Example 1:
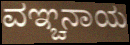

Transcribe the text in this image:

ವಞ್ಚನಾಯ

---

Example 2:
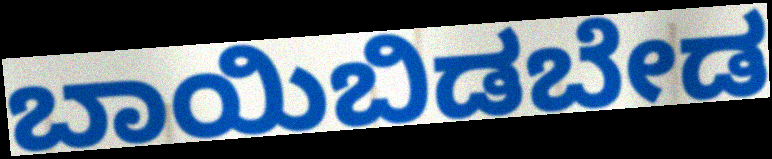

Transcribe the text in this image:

ಬಾಯಿಬಿಡಬೇಡ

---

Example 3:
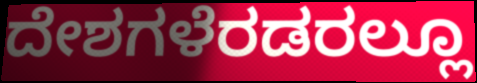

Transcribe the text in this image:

ದೇಶಗಳೆರಡರಲ್ಲೂ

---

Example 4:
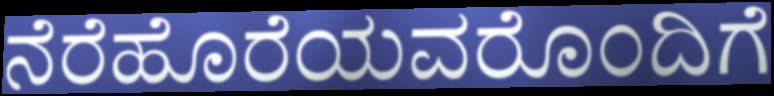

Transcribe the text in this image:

ನೆರೆಹೊರೆಯವರೊಂದಿಗೆ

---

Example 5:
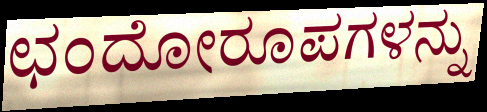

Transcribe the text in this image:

ಛಂದೋರೂಪಗಳನ್ನು